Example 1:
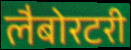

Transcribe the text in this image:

लैबोरटरी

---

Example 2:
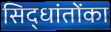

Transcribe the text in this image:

सिद्धांतोंका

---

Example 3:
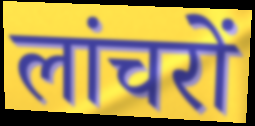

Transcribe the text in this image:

लांचरों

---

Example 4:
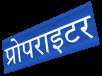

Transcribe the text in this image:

प्रोपराइटर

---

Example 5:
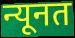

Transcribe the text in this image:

न्यूनत